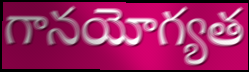
గానయోగ్యత